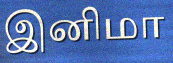
இனிமா